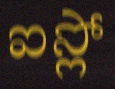
ఐస్లో